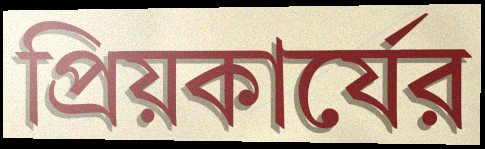
প্রিয়কার্যের